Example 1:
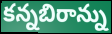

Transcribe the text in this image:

కన్నబిరాన్ను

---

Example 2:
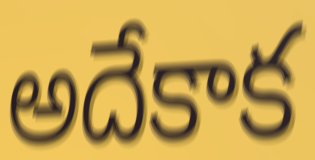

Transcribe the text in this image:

అదేకాక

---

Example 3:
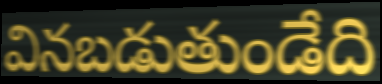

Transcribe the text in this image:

వినబడుతుండేది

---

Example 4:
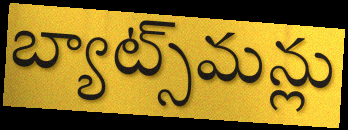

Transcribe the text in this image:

బ్యాట్స్‌మన్లు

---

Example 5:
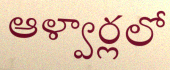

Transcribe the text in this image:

ఆళ్వార్లలో